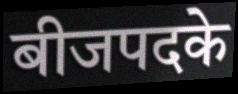
बीजपदके